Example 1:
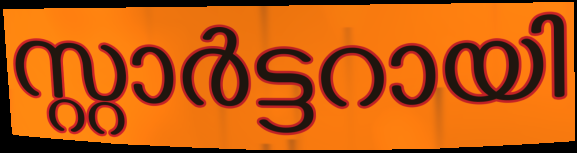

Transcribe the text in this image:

സ്റ്റാർട്ടറായി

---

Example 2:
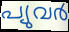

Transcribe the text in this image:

പ്യുവർ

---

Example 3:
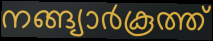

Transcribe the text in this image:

നങ്ങ്യാർകൂത്ത്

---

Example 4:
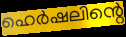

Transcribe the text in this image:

ഹെർഷലിന്റെ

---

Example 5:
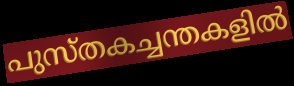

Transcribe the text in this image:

പുസ്തകച്ചന്തകളിൽ